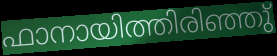
ഫാനായിത്തിരിഞ്ഞു്